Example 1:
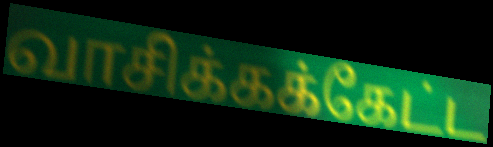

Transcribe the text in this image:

வாசிக்கக்கேட்ட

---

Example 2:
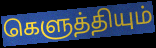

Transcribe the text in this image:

கெளுத்தியும்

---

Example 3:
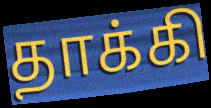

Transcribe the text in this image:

தாக்கி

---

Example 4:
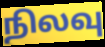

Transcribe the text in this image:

நிலவு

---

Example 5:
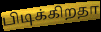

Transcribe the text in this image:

பிடிக்கிறதா